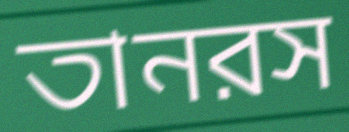
তানরস